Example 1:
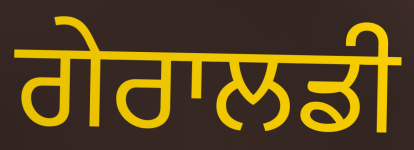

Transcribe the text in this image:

ਗੇਰਾਲਡੀ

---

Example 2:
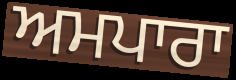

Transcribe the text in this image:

ਅਮਪਾਰਾ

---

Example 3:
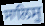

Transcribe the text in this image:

ਸਾਲਿਸੂ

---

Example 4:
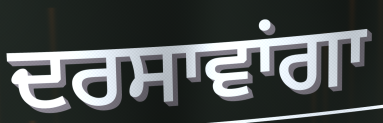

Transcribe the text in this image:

ਦਰਸਾਵਾਂਗਾ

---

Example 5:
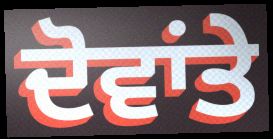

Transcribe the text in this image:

ਦੋਵਾਂਤੇ